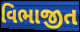
વિભાજીત